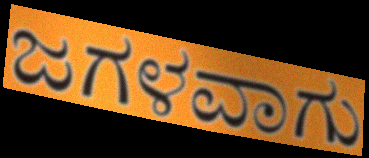
ಜಗಳವಾಗು